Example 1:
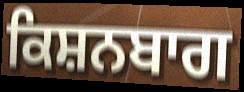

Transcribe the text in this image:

ਕਿਸ਼ਨਬਾਗ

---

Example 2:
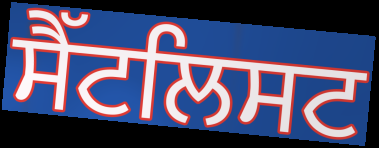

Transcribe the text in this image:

ਸੈੱਟਲਿਸਟ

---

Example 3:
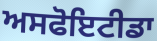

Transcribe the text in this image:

ਅਸਫੋਇਟੀਡਾ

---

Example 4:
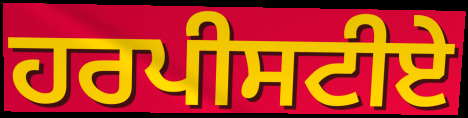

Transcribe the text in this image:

ਹਰਪੀਸਟੀਏ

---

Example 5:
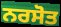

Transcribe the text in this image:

ਨਰਸੋਤ